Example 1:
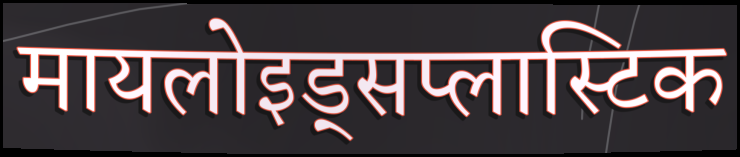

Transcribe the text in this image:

मायलोइड्सप्लास्टिक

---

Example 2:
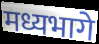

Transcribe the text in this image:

मध्यभागे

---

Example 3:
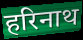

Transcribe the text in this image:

हरिनाथ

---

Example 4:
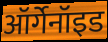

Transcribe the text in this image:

ऑर्गेनॉइड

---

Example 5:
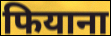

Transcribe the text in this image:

फियाना